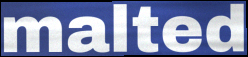
malted